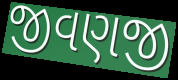
જીવણજી